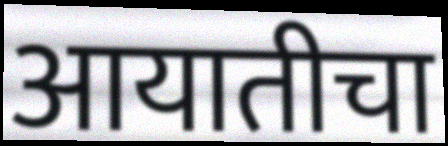
आयातीचा